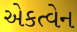
એકત્વેન